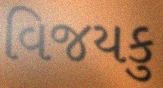
વિજયકુ